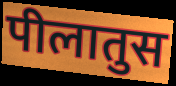
पीलातुस